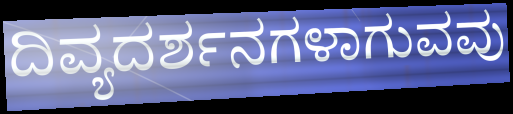
ದಿವ್ಯದರ್ಶನಗಳಾಗುವವು